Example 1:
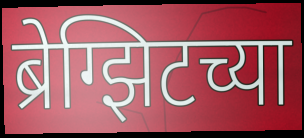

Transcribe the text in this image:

ब्रेग्झिटच्या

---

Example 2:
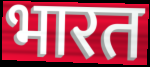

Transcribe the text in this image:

भारत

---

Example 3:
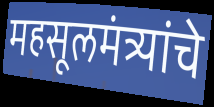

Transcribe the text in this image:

महसूलमंत्र्यांचे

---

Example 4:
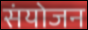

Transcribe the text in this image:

संयोजन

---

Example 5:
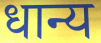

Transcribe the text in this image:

धान्य